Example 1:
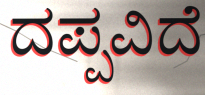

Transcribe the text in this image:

ದಪ್ಪವಿದೆ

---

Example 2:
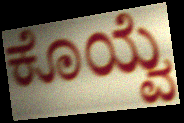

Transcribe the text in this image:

ಕೊಯ್ವೆ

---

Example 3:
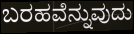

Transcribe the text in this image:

ಬರಹವೆನ್ನುವುದು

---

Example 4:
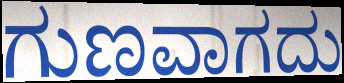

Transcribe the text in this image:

ಗುಣವಾಗದು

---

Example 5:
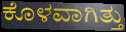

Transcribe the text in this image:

ಕೊಳವಾಗಿತ್ತು